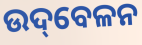
ଉଦ୍‌ବେଳନ